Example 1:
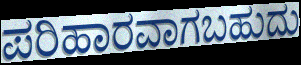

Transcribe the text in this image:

ಪರಿಹಾರವಾಗಬಹುದು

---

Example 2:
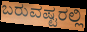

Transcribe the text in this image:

ಬರುವಷ್ಟರಲ್ಲಿ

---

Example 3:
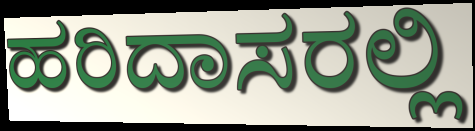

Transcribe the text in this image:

ಹರಿದಾಸರಲ್ಲಿ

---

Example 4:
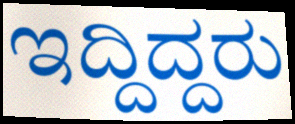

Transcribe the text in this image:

ಇದ್ದಿದ್ದರು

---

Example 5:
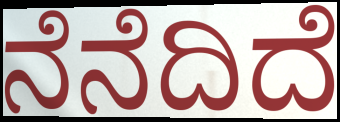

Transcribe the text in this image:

ನೆನೆದಿದೆ